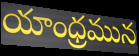
యాంధ్రమున